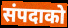
संपदाको